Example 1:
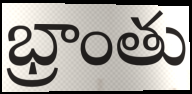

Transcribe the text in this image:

భ్రాంతు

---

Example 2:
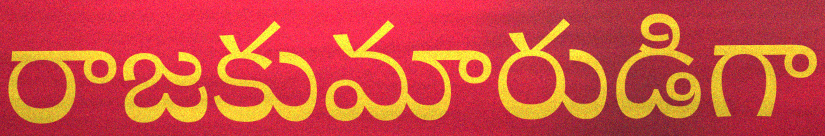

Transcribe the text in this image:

రాజకుమారుడిగా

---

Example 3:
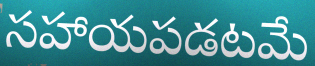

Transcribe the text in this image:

సహాయపడటమే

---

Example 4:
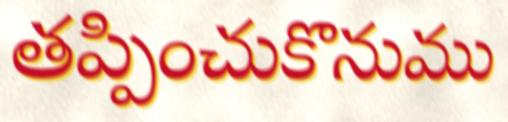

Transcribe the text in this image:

తప్పించుకొనుము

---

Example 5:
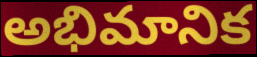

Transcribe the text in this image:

అభిమానిక